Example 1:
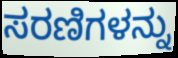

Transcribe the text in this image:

ಸರಣಿಗಳನ್ನು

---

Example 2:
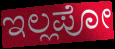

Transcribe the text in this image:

ಇಲ್ಲಪೋ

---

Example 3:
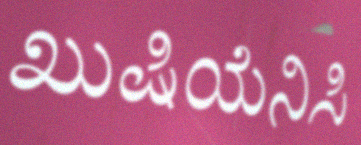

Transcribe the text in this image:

ಖುಷಿಯೆನಿಸಿ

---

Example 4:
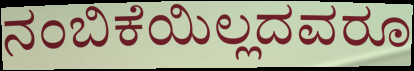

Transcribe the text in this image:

ನಂಬಿಕೆಯಿಲ್ಲದವರೂ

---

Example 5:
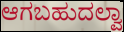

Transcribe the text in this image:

ಆಗಬಹುದಲ್ವಾ